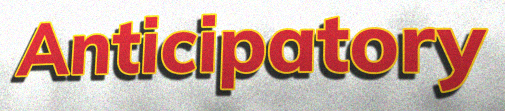
Anticipatory